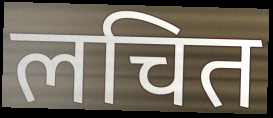
लचित